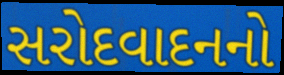
સરોદવાદનનો